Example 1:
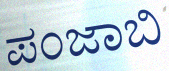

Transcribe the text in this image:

ಪಂಜಾಬಿ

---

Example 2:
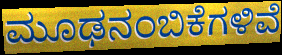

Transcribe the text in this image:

ಮೂಢನಂಬಿಕೆಗಳಿವೆ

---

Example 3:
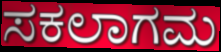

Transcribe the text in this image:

ಸಕಲಾಗಮ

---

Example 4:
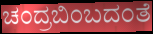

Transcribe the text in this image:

ಚಂದ್ರಬಿಂಬದಂತೆ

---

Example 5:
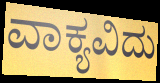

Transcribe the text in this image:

ವಾಕ್ಯವಿದು